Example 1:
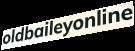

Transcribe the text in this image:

oldbaileyonline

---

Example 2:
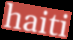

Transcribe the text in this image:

haiti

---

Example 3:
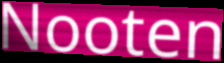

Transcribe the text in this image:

Nooten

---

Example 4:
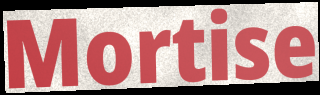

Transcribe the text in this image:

Mortise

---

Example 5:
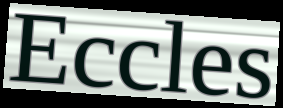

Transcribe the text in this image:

Eccles